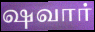
ஷவார்